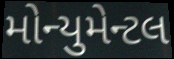
મોન્યુમેન્ટલ